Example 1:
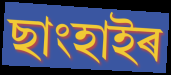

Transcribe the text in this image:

ছাংহাইৰ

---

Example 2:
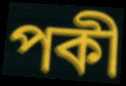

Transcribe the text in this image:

পকী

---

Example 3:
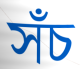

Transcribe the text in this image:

সঁচ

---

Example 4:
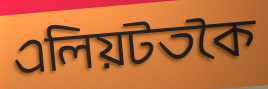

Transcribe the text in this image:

এলিয়টতকৈ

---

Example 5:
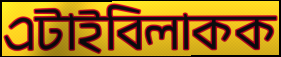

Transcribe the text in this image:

এটাইবিলাকক